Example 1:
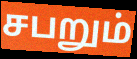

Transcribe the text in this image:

சபறும்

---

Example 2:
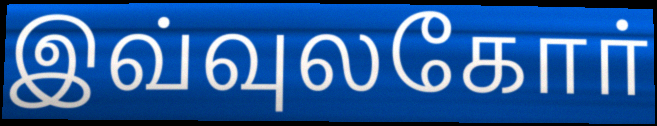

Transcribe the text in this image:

இவ்வுலகோர்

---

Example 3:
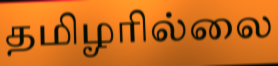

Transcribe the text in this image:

தமிழரில்லை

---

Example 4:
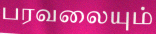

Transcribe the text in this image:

பரவலையும்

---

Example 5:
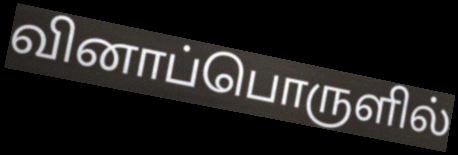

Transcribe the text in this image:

வினாப்பொருளில்